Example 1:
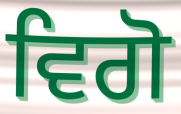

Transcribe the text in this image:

ਵਿਗੋ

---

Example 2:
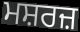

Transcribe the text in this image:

ਮਸ਼ਰਜ਼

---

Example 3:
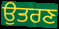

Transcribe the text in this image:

ਉਤਰਣ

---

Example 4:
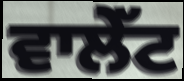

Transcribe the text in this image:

ਵਾਲੇੱਟ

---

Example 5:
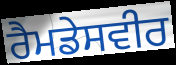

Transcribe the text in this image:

ਰੈਮਡੇਸਵੀਰ